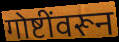
गोष्टींवरून